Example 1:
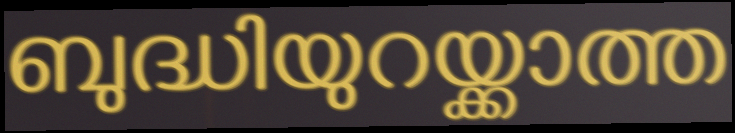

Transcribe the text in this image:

ബുദ്ധിയുറയ്ക്കാത്ത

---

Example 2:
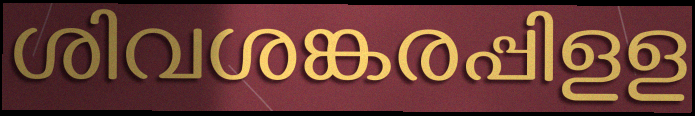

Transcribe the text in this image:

ശിവശങ്കരപ്പിളള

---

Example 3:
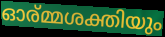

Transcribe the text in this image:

ഓര്മ്മശക്തിയും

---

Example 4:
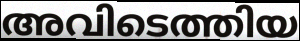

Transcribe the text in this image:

അവിടെത്തിയ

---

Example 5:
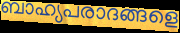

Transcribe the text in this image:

ബാഹ്യപരാദങ്ങളെ